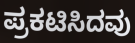
ಪ್ರಕಟಿಸಿದವು